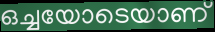
ഒച്ചയോടെയാണ്